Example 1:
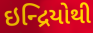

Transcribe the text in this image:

ઇન્દ્રિયોથી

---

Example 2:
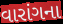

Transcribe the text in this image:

વારાંગના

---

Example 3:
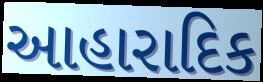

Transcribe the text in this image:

આહારાદિક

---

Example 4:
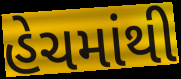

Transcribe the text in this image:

હેચમાંથી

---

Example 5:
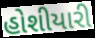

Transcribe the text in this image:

હોશીયારી